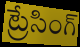
ట్రేసింగ్